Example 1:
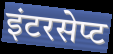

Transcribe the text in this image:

इंटरसेप्‍ट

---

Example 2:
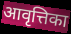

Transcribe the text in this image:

आवृत्तिका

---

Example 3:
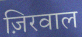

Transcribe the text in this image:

ज़िरवाल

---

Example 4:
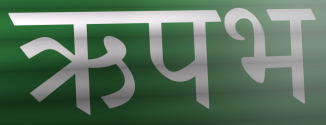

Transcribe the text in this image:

ऋपभ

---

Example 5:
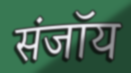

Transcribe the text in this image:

संजॉय